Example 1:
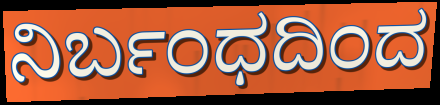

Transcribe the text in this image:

ನಿರ್ಬಂಧದಿಂದ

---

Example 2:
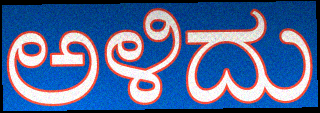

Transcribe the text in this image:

ಅಳಿದು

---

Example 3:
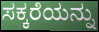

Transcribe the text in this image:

ಸಕ್ಕರೆಯನ್ನು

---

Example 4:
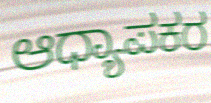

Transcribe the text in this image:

ಆಧ್ಯಾಪಕರ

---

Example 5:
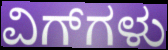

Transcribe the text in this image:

ವಿಗ್‌ಗಳು